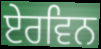
ਏਰਵਿਨ